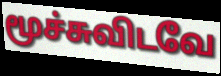
மூச்சுவிடவே